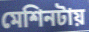
মেশিনটায়